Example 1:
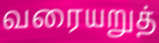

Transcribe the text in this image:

வரையறுத்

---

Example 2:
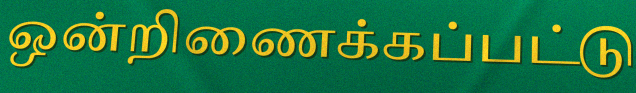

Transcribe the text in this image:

ஒன்றிணைக்கப்பட்டு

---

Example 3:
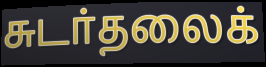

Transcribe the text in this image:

சுடர்தலைக்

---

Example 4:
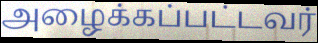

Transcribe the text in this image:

அழைக்கப்பட்டவர்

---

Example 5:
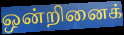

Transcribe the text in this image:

ஒன்றினைக்